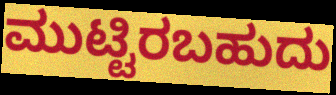
ಮುಟ್ಟಿರಬಹುದು